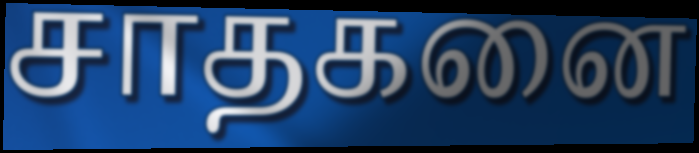
சாதகனை